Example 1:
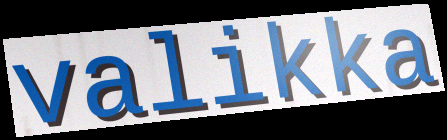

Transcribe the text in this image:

valikka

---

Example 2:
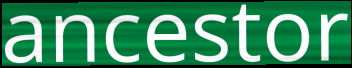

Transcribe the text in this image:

ancestor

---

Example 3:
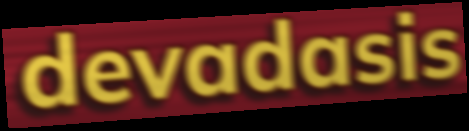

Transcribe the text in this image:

devadasis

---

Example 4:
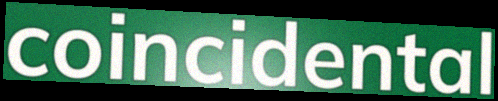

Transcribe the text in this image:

coincidental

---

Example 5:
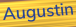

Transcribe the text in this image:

Augustin